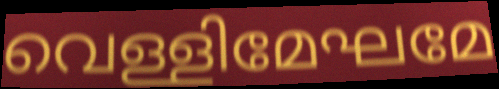
വെള്ളിമേഘമേ